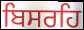
ਬਿਸਰਹਿ